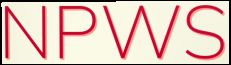
NPWS